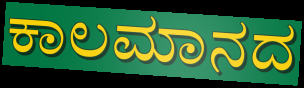
ಕಾಲಮಾನದ